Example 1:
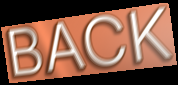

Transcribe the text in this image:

BACK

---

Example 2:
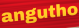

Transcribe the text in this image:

angutho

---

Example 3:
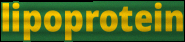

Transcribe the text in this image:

lipoprotein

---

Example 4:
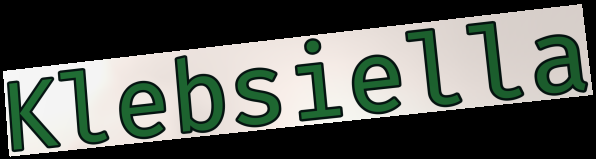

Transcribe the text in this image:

Klebsiella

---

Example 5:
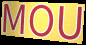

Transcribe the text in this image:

MOU